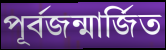
পূৰ্বজন্মাৰ্জিত